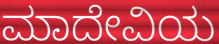
ಮಾದೇವಿಯ